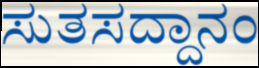
ಸುತಸದ್ದಾನಂ